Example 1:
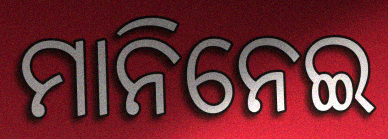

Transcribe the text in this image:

ମାନିନେଇ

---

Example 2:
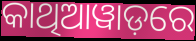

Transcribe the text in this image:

କାଥିଆୱାଡ଼ରେ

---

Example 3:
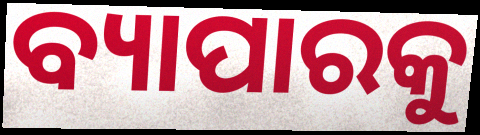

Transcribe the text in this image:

ବ୍ୟାପାରକୁ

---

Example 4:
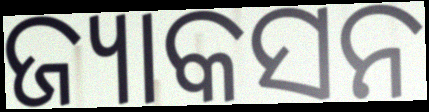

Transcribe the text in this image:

ଜ୍ୟାକସନ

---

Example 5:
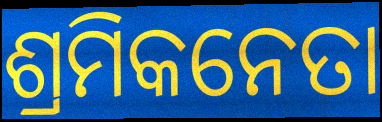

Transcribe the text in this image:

ଶ୍ରମିକନେତା